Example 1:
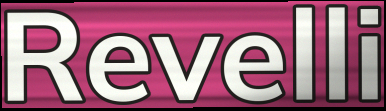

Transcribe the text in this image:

Revelli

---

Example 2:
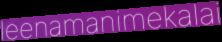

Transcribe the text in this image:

leenamanimekalai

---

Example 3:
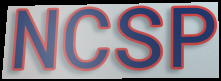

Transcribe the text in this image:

NCSP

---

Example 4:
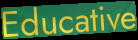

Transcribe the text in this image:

Educative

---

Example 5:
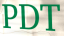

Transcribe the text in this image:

PDT